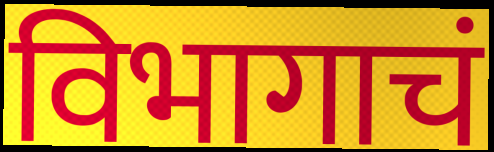
विभागाचं